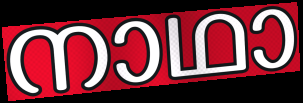
നാഥാ